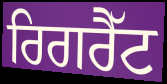
ਰਿਗਰੈੱਟ